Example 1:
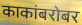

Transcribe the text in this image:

काकांबरोबर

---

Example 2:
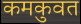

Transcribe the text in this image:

कमकुवत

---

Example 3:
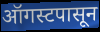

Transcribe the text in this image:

ऑगस्टपासून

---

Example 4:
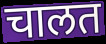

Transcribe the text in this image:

चालत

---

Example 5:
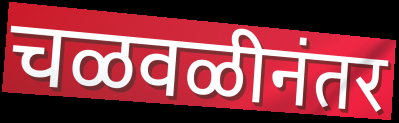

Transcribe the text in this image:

चळवळीनंतर